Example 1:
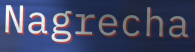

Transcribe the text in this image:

Nagrecha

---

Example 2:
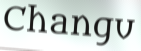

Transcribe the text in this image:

Changu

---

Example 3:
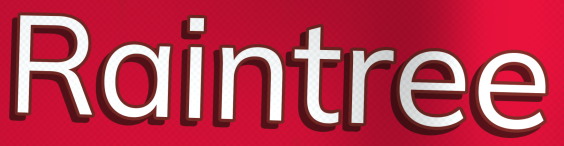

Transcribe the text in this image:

Raintree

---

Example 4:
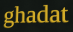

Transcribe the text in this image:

ghadat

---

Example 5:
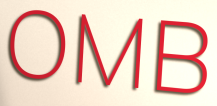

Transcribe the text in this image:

OMB